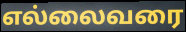
எல்லைவரை